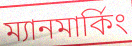
ম্যানমার্কিং